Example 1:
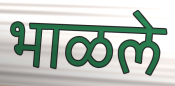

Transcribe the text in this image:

भाळले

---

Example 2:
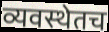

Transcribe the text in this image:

व्यवस्थेतच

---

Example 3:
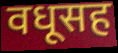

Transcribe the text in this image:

वधूसह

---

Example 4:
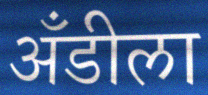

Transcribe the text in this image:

अँडीला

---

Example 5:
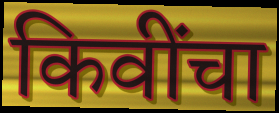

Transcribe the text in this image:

किवींचा